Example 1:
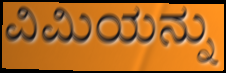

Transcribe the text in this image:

ವಿಮಿಯನ್ನು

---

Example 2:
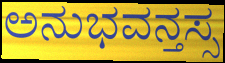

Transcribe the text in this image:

ಅನುಭವನ್ತಸ್ಸ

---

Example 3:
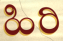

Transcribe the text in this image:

ಹಿರಿ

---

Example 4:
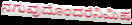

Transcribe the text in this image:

ನಗುವುದೊಂದರೆನಿಮಿಷ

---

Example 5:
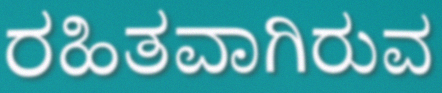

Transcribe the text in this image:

ರಹಿತವಾಗಿರುವ